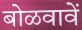
बोळवावें